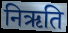
निऋति